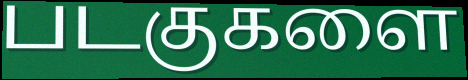
படகுகளை